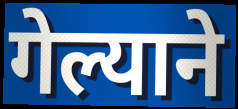
गेल्याने